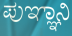
ಪುಞ್ಞಾನಿ